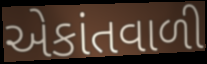
એકાંતવાળી